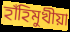
হাঁহিমুখীয়া